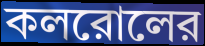
কলরোলের